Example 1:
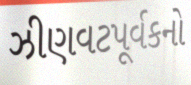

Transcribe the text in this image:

ઝીણવટપૂર્વકનો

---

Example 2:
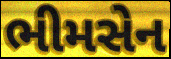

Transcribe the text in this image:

ભીમસેન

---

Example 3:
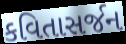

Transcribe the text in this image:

કવિતાસર્જન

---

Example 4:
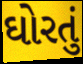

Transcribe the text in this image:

ઘોરતું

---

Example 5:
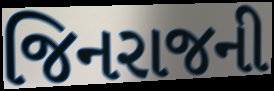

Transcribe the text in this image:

જિનરાજની